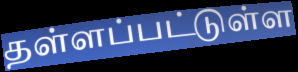
தள்ளப்பட்டுள்ள